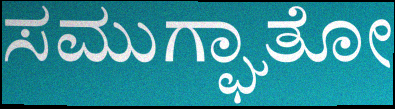
ಸಮುಗ್ಘಾತೋ